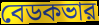
বেডকভার